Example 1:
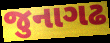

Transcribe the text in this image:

જુનાગઢ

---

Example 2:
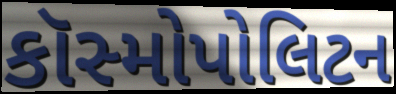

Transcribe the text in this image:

કૉસ્મોપોલિટન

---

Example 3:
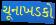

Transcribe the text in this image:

ચૂનાખડકો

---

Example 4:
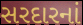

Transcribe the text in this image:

સરદારનાં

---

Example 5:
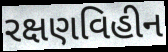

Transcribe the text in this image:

રક્ષણવિહીન